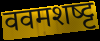
ववमशष्ट्ट